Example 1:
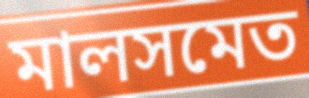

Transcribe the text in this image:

মালসমেত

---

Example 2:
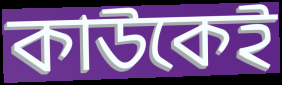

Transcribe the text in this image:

কাউকেই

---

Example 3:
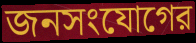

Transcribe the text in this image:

জনসংযোগের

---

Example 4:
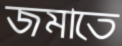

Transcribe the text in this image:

জমাতে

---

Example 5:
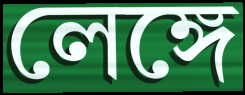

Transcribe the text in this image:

লেঙ্গে